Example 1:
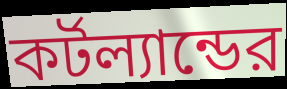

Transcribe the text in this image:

কর্টল্যান্ডের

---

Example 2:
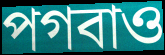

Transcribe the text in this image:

পগবাও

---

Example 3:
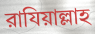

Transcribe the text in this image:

রাযিয়াল্লাহ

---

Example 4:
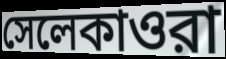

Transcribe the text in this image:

সেলেকাওরা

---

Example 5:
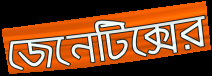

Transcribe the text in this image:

জেনেটিক্সের